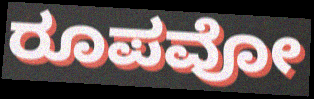
ರೂಪವೋ